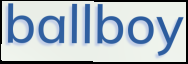
ballboy